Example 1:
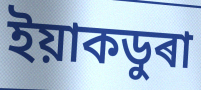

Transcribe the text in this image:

ইয়াকডুৰা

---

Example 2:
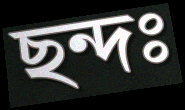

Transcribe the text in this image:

ছন্দঃ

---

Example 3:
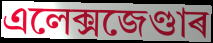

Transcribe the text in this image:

এলেক্সজেণ্ডাৰ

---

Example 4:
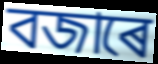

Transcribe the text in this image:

বজাৰে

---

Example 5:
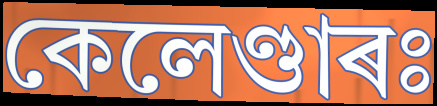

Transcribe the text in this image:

কেলেণ্ডাৰঃ